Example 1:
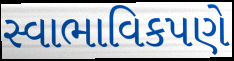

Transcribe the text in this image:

સ્વાભાવિકપણે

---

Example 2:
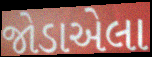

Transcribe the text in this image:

જોડાએલા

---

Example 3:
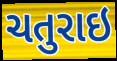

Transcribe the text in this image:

ચતુરાઇ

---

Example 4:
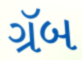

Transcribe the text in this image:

ગ્રૅબ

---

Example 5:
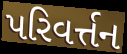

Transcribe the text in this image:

પરિવર્ત્તન